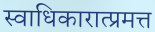
स्वाधिकारात्प्रमत्त